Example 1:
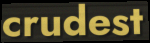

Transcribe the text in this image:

crudest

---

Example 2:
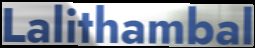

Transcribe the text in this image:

Lalithambal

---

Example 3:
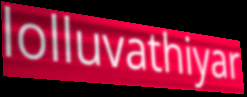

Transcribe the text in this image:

lolluvathiyar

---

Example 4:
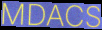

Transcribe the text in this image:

MDACS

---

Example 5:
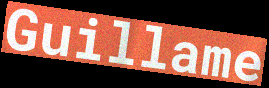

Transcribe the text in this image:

Guillame